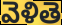
వెళితె